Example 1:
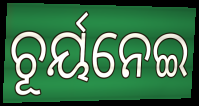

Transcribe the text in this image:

ଚୂର୍ୟନେଇ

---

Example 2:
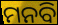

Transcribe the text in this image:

ମନବି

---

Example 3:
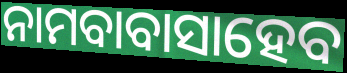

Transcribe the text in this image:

ନାମବାବାସାହେବ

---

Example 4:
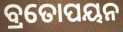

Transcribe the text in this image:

ବ୍ରତୋପୟନ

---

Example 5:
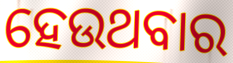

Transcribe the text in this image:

ହେଉଥବାର